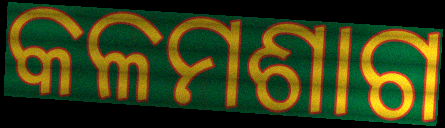
କଳମଶାଗ